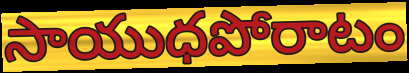
సాయుధపోరాటం